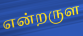
என்றருள